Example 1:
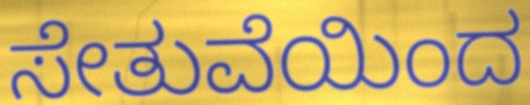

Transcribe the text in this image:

ಸೇತುವೆಯಿಂದ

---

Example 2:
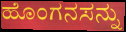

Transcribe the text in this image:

ಹೊಂಗನಸನ್ನು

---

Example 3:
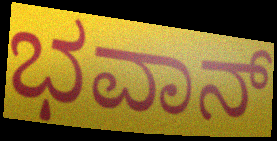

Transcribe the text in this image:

ಭವಾನ್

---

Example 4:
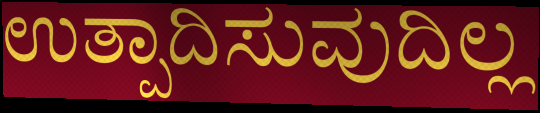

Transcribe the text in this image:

ಉತ್ಪಾದಿಸುವುದಿಲ್ಲ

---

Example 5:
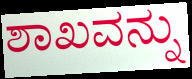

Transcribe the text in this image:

ಶಾಖವನ್ನು